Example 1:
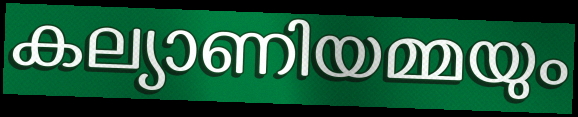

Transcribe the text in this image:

കല്യാണിയമ്മയും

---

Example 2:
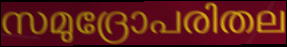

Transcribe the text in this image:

സമുദ്രോപരിതല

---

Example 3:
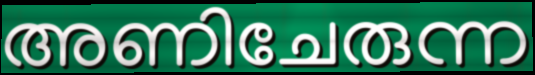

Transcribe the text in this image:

അണിചേരുന്ന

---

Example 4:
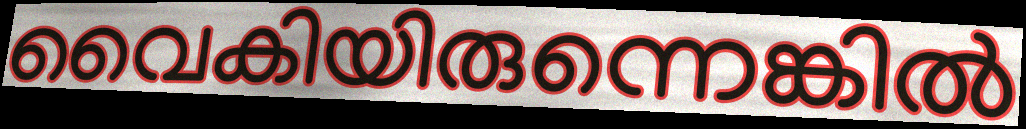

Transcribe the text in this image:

വൈകിയിരുന്നെങ്കിൽ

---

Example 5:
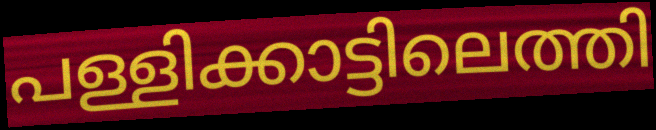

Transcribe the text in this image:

പള്ളിക്കാട്ടിലെത്തി